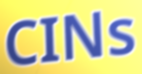
CINs